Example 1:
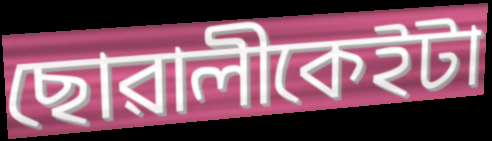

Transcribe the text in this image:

ছোৱালীকেইটা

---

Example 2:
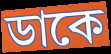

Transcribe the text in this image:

ডাকে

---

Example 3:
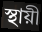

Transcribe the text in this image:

স্থায়ী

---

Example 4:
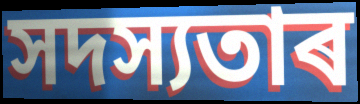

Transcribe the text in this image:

সদস্যতাৰ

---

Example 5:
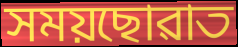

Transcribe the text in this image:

সময়ছোৱাত